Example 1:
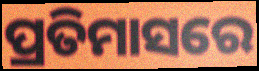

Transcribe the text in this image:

ପ୍ରତିମାସରେ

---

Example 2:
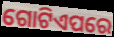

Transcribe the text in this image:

ଗୋଟିଏପରେ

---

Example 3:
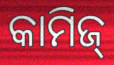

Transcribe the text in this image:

କାମିଜ୍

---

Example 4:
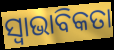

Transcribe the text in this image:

ସ୍ବାଭାବିକତା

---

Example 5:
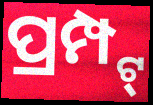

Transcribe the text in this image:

ପ୍ରମ୍ପ୍ଟ୍